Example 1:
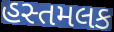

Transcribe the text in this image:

હસ્તમલક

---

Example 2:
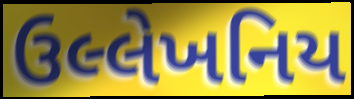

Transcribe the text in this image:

ઉલ્લેખનિય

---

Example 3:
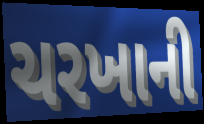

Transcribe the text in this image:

ચરખાની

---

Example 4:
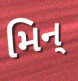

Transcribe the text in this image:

મિન્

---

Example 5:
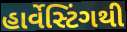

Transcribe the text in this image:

હાર્વેસ્ટિંગથી